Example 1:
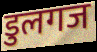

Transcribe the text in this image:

डुलगज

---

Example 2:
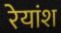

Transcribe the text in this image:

रेयांश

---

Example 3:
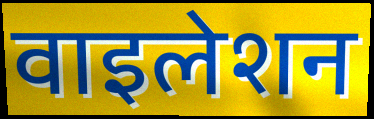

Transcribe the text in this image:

वाइलेशन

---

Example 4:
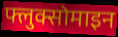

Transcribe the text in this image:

फ्लुक्सोमाइन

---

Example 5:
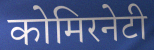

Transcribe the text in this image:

कोमिरनेटी